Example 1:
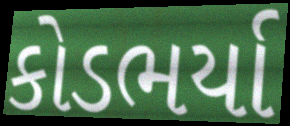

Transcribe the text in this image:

કોડભર્યા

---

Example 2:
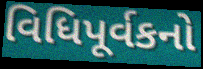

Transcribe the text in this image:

વિધિપૂર્વકનો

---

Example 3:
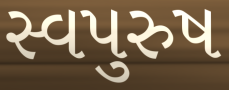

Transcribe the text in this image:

સ્વપુરુષ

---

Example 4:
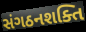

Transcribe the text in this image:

સંગઠનશક્તિ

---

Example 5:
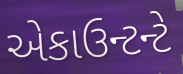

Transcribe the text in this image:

એકાઉન્ટન્ટે